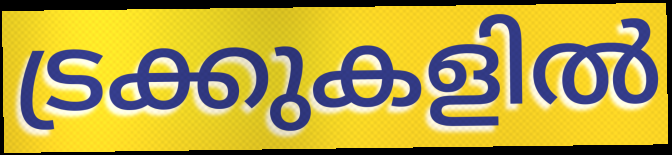
ട്രക്കുകളിൽ